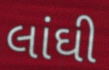
લાંઘી